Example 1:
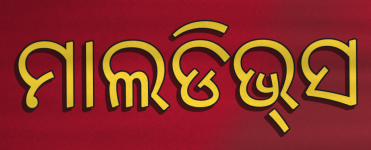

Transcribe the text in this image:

ମାଲଡିଭ୍‌ସ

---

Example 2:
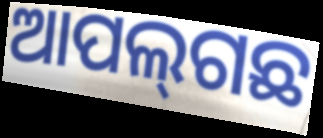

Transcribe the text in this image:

ଆପଲ୍‍ଗଛ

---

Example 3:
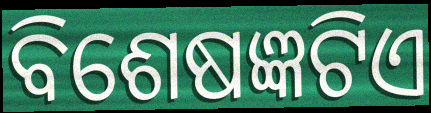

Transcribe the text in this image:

ବିଶେଷଜ୍ଞଟିଏ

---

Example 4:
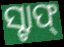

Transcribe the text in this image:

ସ୍ଟାଫ୍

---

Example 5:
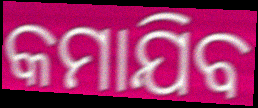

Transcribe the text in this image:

କମାଯିବ